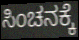
ಸಿಂಚನಕ್ಕೆ